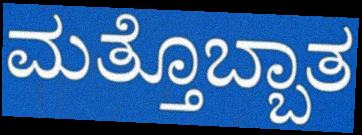
ಮತ್ತೊಬ್ಬಾತ